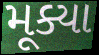
મૂક્યા